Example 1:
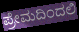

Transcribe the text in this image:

ಪ್ರೇಮದಿಂದಲಿ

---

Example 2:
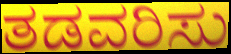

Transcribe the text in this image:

ತಡವರಿಸು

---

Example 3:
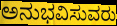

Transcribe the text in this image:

ಅನುಭವಿಸುವರು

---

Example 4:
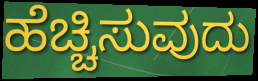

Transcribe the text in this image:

ಹೆಚ್ಚಿಸುವುದು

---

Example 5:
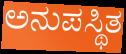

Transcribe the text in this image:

ಅನುಪಸ್ಥಿತ